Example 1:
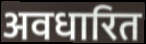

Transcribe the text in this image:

अवधारित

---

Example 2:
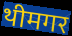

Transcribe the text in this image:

थीमगर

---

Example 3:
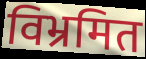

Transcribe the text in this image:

विभ्रमित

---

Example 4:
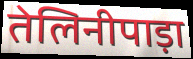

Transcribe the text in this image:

तेलिनीपाड़ा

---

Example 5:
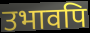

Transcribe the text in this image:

उभावपि